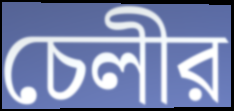
চেলীর